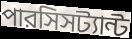
পারসিসট্যান্ট